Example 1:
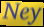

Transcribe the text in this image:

Ney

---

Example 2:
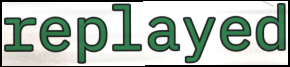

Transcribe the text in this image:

replayed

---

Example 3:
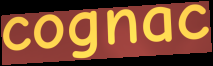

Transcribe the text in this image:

cognac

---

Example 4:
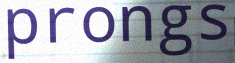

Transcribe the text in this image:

prongs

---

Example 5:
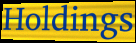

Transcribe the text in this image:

Holdings